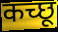
कच्छू